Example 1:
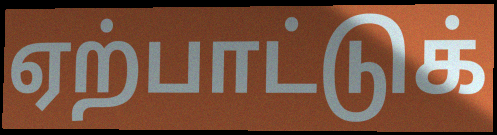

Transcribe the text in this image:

ஏற்பாட்டுக்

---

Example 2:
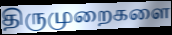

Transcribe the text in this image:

திருமுறைகளை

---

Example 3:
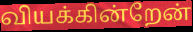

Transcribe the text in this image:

வியக்கின்றேன்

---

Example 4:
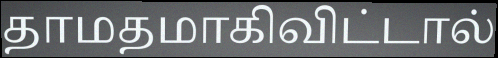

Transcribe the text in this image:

தாமதமாகிவிட்டால்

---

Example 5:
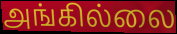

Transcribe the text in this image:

அங்கில்லை